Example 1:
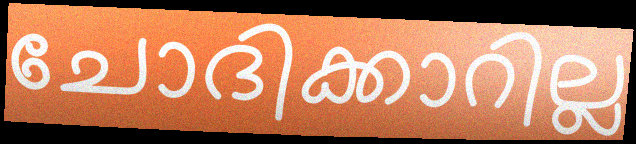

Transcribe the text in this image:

ചോദിക്കാറില്ല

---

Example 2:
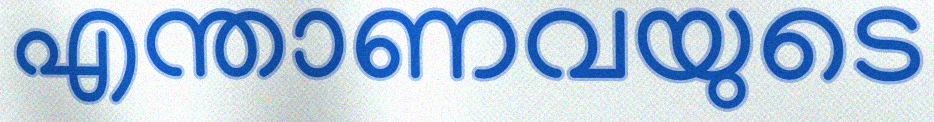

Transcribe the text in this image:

എന്താണവയുടെ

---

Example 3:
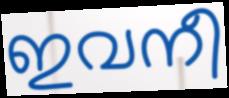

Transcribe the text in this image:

ഇവനീ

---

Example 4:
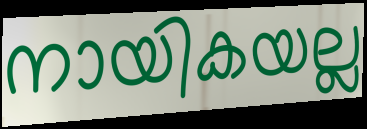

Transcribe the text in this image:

നായികയല്ല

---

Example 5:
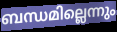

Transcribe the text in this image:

ബന്ധമില്ലെന്നും